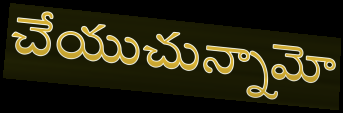
చేయుచున్నామో